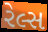
રેલ્સ